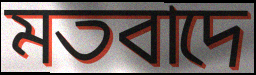
মতবাদে